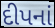
દીપનાં